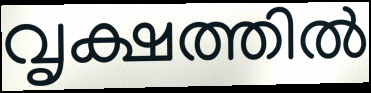
വൃക്ഷത്തിൽ